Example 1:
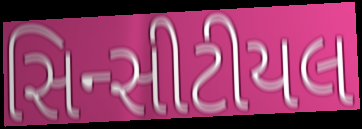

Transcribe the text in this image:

સિન્સીટીયલ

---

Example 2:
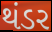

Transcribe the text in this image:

થંડર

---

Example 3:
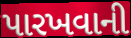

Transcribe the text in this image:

પારખવાની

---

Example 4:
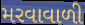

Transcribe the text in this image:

મરવાવાળી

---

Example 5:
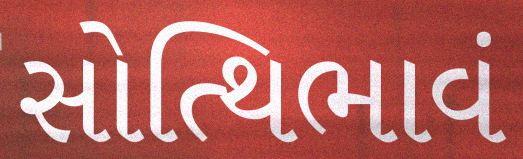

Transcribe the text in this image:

સોત્થિભાવં